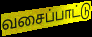
வசைப்பாட்டு